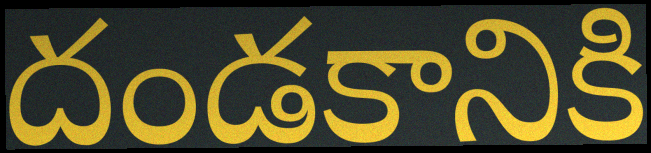
దండకానికి